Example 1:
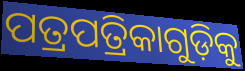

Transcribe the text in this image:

ପତ୍ରପତ୍ରିକାଗୁଡ଼ିକୁ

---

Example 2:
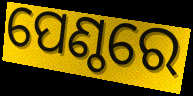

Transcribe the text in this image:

ପେଣ୍ଠରେ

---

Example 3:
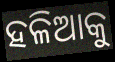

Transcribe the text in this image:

ହଳିଆକୁ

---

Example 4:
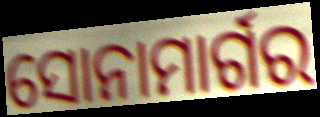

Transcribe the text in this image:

ସୋନାମାର୍ଗର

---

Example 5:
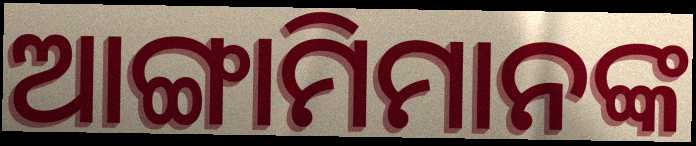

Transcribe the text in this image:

ଆଙ୍ଗାମିମାନଙ୍କ